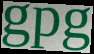
gpg